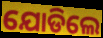
ଯୋଡିଲେ